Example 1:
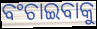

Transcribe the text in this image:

ବଂଚାଇବାକୁ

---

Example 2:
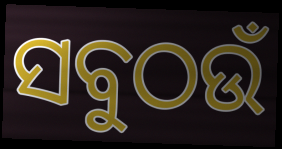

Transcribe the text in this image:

ସବୁଠଉଁ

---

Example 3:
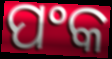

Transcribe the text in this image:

ପଂକ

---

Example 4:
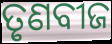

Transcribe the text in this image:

ତୃଣବୀଜ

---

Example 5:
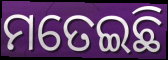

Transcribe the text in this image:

ମତେଇଛି